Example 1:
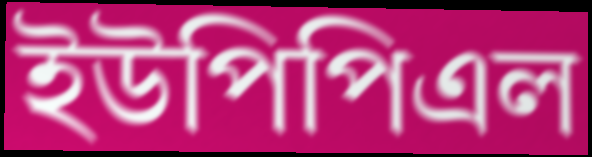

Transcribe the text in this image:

ইউপিপিএল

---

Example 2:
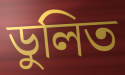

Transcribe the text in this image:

ডুলিত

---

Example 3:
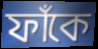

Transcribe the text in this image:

ফাঁকে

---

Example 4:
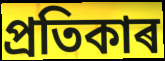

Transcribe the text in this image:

প্ৰতিকাৰ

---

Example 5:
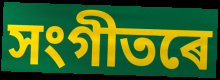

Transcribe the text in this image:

সংগীতৰে